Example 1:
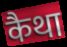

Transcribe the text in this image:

कैथा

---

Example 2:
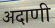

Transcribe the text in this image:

अदाणी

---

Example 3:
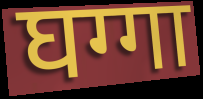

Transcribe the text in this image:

घग्गा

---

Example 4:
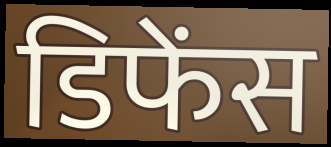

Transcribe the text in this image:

डिफेंस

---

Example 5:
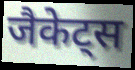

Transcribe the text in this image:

जैकेट्स